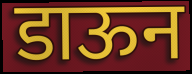
डाऊन